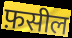
फ़सील